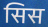
सिस